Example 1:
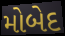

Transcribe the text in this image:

મોબેદ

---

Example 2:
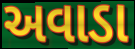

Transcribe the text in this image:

અવાડા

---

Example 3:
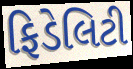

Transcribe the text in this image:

ફિડેલિટી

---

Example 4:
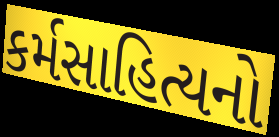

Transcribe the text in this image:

કર્મસાહિત્યનો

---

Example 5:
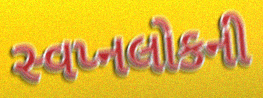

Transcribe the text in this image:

સ્વપ્નલોકની